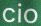
cio